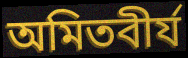
অমিতবীর্য